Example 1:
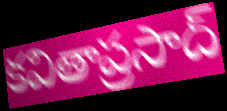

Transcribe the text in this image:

కవితాప్రసాద్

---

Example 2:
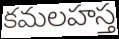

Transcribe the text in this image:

కమలహస్త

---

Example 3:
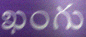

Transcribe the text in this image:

ఖంగు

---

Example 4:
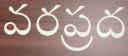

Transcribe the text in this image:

వరప్రద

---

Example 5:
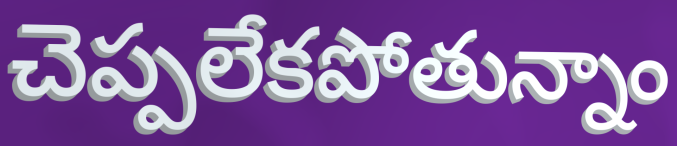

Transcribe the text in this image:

చెప్పలేకపోతున్నాం